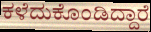
ಕಳೆದುಕೊಂಡಿದ್ದಾರೆ